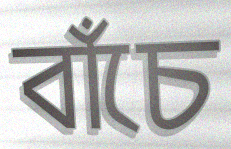
বাঁচে